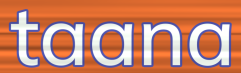
taana